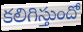
కలిగిస్తుందో